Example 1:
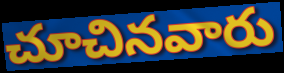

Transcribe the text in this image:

చూచినవారు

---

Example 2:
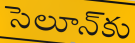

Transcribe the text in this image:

సెలూన్‌కు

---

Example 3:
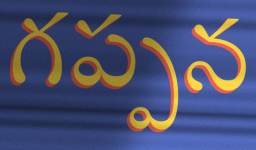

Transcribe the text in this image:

గప్పన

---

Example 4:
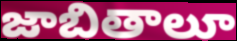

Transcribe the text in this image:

జాబితాలూ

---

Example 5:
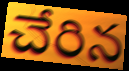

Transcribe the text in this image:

చేరిన